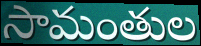
సామంతుల